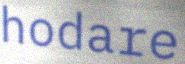
hodare